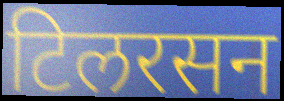
टिलरसन